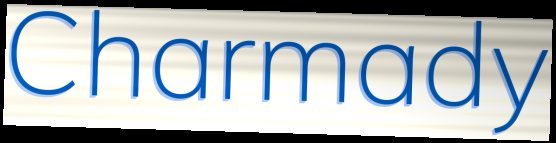
Charmady